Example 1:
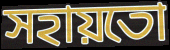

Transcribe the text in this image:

সহায়তো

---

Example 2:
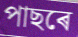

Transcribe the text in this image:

পাছৰে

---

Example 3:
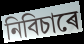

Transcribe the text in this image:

নিবিচাৰে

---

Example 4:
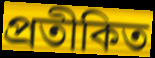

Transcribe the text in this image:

প্ৰতীকিত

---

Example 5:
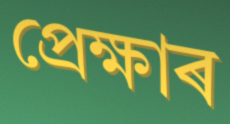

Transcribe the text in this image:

প্ৰেক্ষাৰ